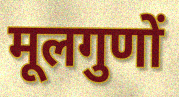
मूलगुणों